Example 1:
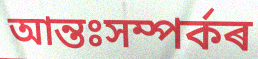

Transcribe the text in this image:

আন্তঃসম্পৰ্কৰ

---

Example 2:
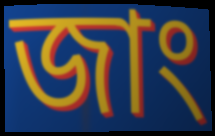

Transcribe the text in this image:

জাং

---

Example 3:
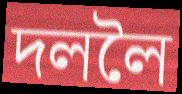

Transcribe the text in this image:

দললৈ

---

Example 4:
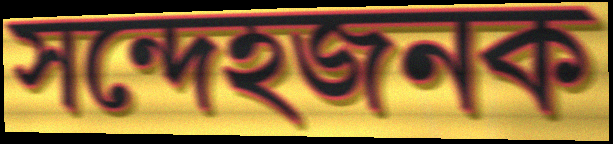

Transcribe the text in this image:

সন্দেহজনক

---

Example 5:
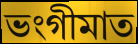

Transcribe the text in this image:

ভংগীমাত